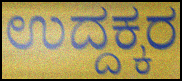
ಉದ್ದಕ್ಕರ